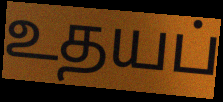
உதயப்